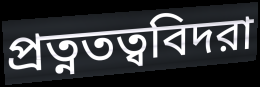
প্রত্নতত্ববিদরা